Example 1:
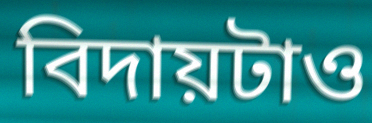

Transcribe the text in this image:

বিদায়টাও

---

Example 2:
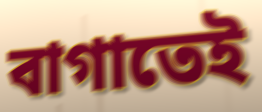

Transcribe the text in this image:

বাগাতেই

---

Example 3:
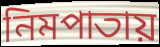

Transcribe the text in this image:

নিমপাতায়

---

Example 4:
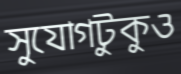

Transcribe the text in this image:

সুযোগটুকুও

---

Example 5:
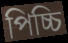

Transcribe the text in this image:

পিচ্চি